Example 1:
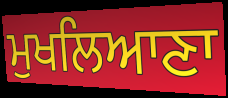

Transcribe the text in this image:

ਮੁਖਲਿਆਣਾ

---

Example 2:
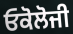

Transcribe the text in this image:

ਓਕੋਲੋਜੀ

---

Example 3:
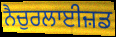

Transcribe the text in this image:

ਨੈਚੁਰਲਾਈਜ਼ਡ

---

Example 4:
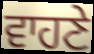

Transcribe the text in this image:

ਵਾਹਣੇ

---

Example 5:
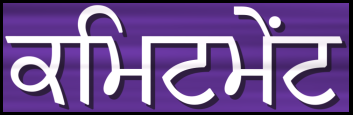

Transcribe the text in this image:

ਕਮਿਟਮੇਂਟ